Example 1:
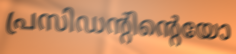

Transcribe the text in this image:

പ്രസിഡന്റിന്റെയോ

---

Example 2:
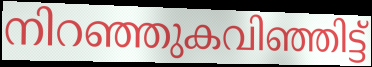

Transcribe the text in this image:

നിറഞ്ഞുകവിഞ്ഞിട്ട്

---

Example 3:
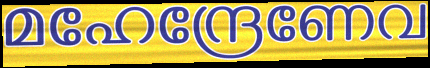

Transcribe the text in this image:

മഹേന്ദ്രേണേവ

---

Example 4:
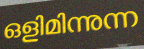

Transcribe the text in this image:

ഒളിമിന്നുന്ന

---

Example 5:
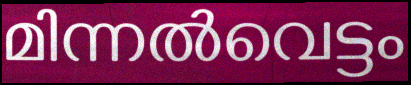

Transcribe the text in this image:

മിന്നൽവെട്ടം